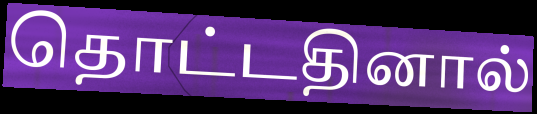
தொட்டதினால்